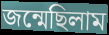
জন্মেছিলাম